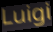
Luigi